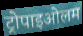
ट्रोपाइओलम